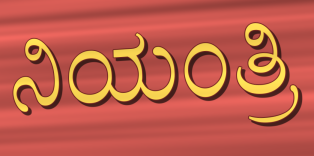
ನಿಯಂತ್ರಿ